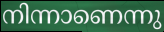
നിന്നാണെന്നു